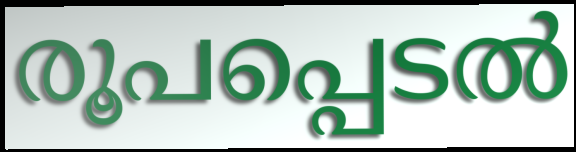
രൂപപ്പെടൽ